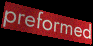
preformed